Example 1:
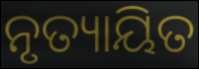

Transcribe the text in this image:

ନୃତ୍ୟାୟିତ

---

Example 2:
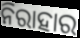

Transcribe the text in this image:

ନିରାହାର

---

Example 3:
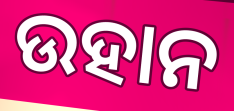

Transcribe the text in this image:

ଉହାନ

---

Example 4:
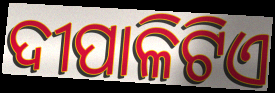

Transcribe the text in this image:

ଦୀପାଳିଟିଏ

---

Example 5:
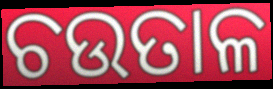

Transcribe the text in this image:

ଚଉତାଳ